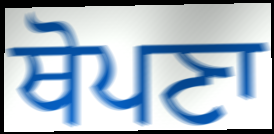
ਥੋਪਣਾ